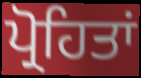
ਪ੍ਰੋਹਿਤਾਂ